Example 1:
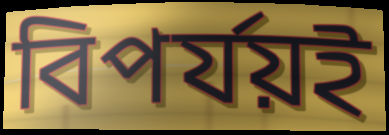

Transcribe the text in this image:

বিপর্যয়ই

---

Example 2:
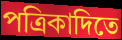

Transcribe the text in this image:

পত্রিকাদিতে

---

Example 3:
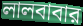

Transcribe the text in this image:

লালবাবার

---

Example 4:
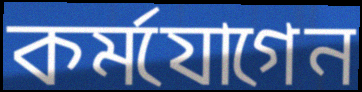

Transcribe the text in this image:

কর্মযোগেন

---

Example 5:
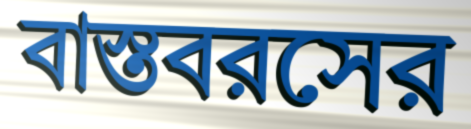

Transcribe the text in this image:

বাস্তবরসের